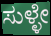
ಸುಳ್ಳೇ